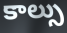
కాల్సు